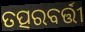
ତତ୍ପରବର୍ତ୍ତୀ